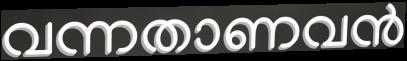
വന്നതാണവൻ